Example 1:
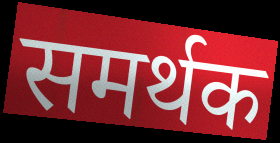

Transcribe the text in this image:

समर्थक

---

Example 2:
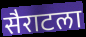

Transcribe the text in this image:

सैराटला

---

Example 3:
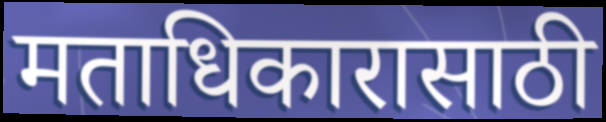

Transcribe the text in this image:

मताधिकारासाठी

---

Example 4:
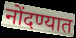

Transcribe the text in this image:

नोंदण्यात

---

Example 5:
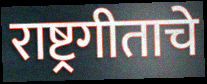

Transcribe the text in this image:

राष्ट्रगीताचे